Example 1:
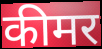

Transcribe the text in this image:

कीमर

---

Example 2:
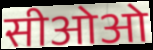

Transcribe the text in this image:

सीओओ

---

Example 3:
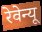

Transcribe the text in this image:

रेवेन्यू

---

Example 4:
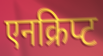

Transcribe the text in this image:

एनक्रिप्ट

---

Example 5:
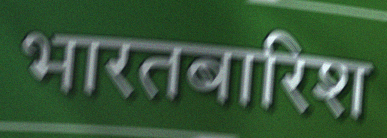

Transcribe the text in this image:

भारतबारिश